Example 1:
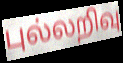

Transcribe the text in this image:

புல்லறிவு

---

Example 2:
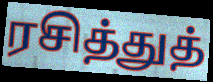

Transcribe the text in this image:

ரசித்துத்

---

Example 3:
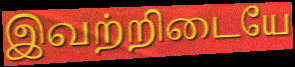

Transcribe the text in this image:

இவற்றிடையே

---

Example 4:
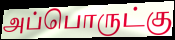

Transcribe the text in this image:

அப்பொருட்கு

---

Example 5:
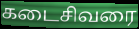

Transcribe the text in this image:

கடைசிவரை